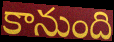
కానుంది